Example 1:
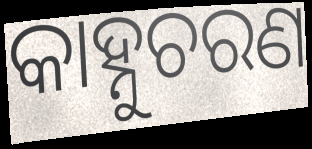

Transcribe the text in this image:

କାହ୍ନୁଚରଣ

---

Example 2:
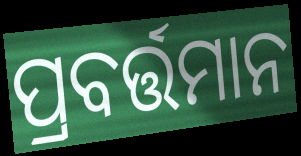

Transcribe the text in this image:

ପ୍ରବର୍ତ୍ତମାନ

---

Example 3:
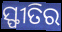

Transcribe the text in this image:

ସ୍ଫୀତିର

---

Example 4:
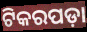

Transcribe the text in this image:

ଟିକରପଡ଼ା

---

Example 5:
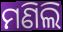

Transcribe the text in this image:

ମଣିଲି